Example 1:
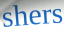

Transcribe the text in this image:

shers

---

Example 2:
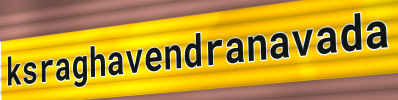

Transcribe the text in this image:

ksraghavendranavada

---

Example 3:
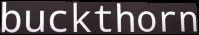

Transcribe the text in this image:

buckthorn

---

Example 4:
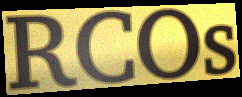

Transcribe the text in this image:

RCOs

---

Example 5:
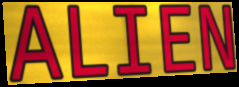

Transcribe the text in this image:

ALIEN